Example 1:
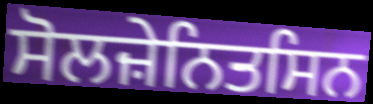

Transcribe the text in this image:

ਸੋਲਜ਼ੇਨਿਤਸਿਨ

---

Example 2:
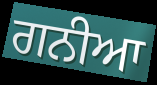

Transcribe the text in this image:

ਗਨੀਆ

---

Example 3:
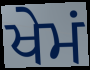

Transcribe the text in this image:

ਖੇਮਂ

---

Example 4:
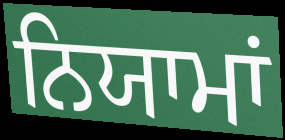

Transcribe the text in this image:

ਨਿਯਾਮਾਂ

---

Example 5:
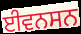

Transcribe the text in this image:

ਈਵਨਸਨ